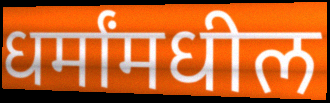
धर्मांमधील